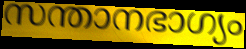
സന്താനഭാഗ്യം